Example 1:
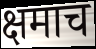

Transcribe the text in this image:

क्षमाच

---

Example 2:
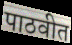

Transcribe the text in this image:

पाठवीत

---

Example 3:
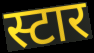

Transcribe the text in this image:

स्टार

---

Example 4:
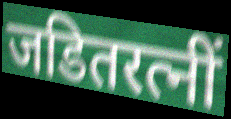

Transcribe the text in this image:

जडितरत्नीं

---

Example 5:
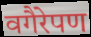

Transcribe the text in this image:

वगैरेपण